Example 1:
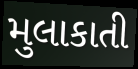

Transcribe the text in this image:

મુલાકાતી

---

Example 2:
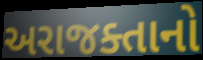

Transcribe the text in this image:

અરાજક્તાનો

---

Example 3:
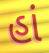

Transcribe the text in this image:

હાં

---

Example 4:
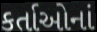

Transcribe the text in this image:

કર્તાઓનાં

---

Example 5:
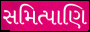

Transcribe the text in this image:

સમિત્પાણિ